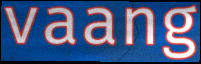
vaang